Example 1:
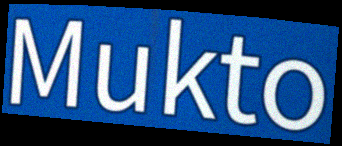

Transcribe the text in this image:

Mukto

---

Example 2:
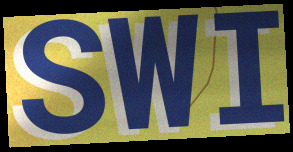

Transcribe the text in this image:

SWI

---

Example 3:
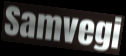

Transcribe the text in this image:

Samvegi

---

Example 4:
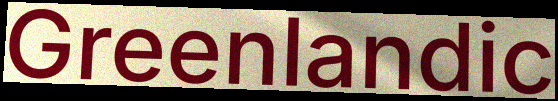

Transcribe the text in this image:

Greenlandic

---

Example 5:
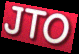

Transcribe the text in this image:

JTO